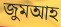
জুমআহ